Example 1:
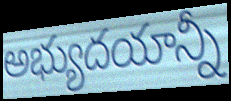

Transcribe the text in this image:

అభ్యుదయాన్నీ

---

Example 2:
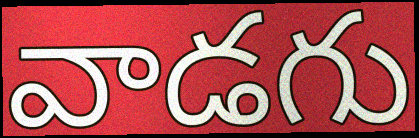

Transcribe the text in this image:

వాడగు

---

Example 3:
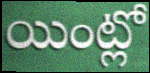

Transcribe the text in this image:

యింట్లో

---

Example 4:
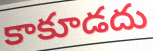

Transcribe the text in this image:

కాకూడదు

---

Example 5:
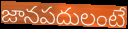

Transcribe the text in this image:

జానపదులంటే